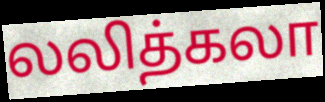
லலித்கலா